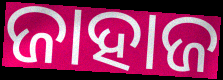
ଜାହାଜ